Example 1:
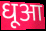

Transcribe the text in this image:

धूआ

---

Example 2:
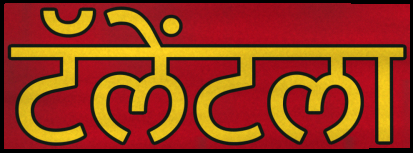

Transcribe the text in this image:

टॅलेंटला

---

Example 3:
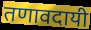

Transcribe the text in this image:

तणावदायी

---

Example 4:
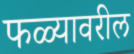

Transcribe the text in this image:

फळ्यावरील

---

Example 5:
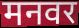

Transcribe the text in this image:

मनवर